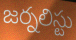
జర్నలిస్టు